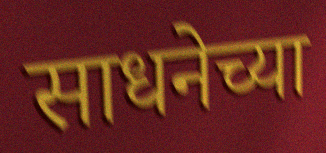
साधनेच्या